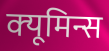
क्यूमिन्स